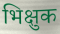
भिक्षुक